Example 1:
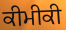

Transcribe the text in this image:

ਕੀਮੀਕੀ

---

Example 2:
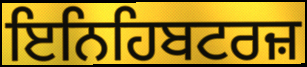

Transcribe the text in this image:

ਇਨਿਹਿਬਟਰਜ਼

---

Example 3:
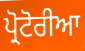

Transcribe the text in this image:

ਪ੍ਰੋਟੋਰੀਆ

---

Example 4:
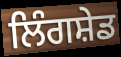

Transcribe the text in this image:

ਲਿੰਗਸ਼ੇਡ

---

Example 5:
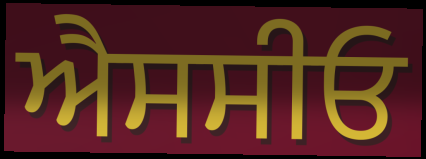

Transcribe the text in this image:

ਐਸਸੀਓ